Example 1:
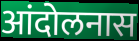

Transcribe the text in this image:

आंदोलनास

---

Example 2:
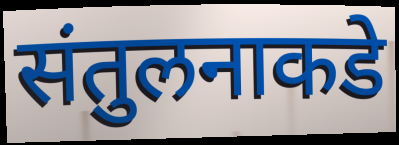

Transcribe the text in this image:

संतुलनाकडे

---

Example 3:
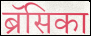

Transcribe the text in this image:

ब्रॅसिका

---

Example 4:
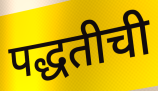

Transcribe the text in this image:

पद्धतीची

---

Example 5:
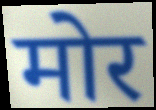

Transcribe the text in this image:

मोर